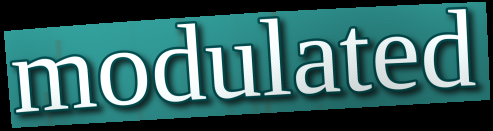
modulated